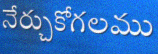
నేర్చుకోగలము